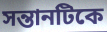
সন্তানটিকে